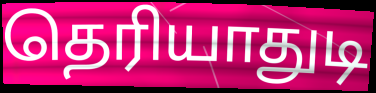
தெரியாதுடி